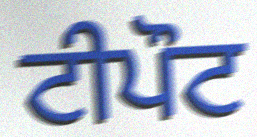
ਟੀਪੌਟ